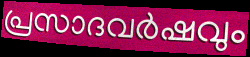
പ്രസാദവർഷവും